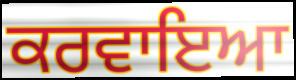
ਕਰਵਾਇਆ